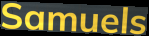
Samuels